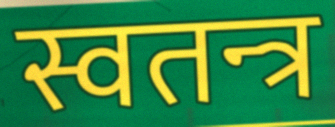
स्वतन्त्र